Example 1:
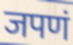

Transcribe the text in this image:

जपणं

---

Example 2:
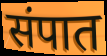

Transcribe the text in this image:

संपात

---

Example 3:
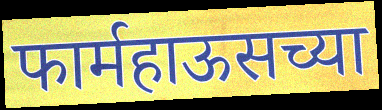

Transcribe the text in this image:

फार्महाऊसच्या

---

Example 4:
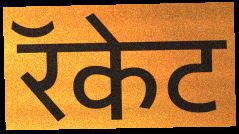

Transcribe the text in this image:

रॅकेट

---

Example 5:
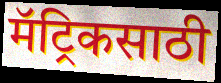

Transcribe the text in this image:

मॅट्रिकसाठी